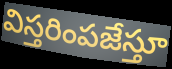
విస్తరింపజేస్తూ